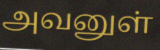
அவனுள்